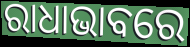
ରାଧାଭାବରେ